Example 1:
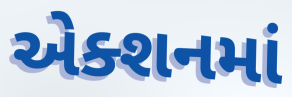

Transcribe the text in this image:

એક્શનમાં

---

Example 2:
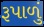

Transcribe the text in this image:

રૂપાળું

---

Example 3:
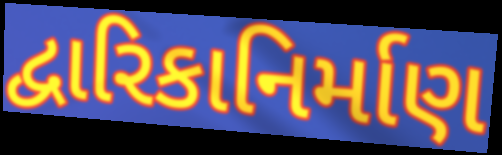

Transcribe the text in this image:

દ્વારિકાનિર્માણ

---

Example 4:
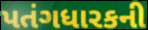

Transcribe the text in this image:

પતંગધારકની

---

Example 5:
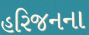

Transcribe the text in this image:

હરિજનના